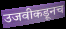
उजवीकडूनच